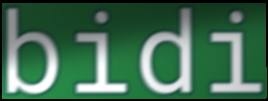
bidi